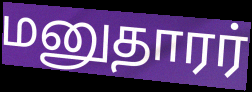
மனுதாரர்